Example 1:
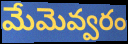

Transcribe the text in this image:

మేమెవ్వరం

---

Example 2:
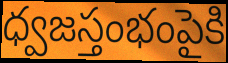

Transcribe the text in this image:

ధ్వజస్తంభంపైకి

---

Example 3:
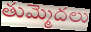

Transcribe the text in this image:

తుమ్మెదలు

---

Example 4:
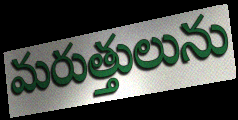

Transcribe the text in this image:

మరుత్తులును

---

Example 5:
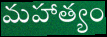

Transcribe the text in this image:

మహాత్యం